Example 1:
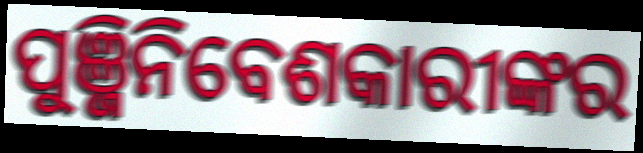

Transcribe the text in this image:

ପୁଞ୍ଜିନିବେଶକାରୀଙ୍କର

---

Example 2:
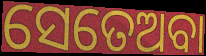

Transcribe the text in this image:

ସେତେଅବା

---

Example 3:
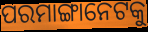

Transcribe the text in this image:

ପରମାଙ୍ଗାନେଟକୁ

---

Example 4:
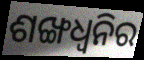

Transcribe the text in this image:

ଶଙ୍ଖଧ୍ବନିର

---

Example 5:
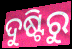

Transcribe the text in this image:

ଦୁଷ୍ଟିରୁ